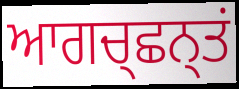
ਆਗਚ੍ਛਨ੍ਤਂ